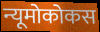
न्यूमोकोकस